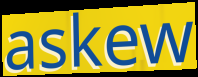
askew